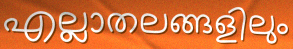
എല്ലാതലങ്ങളിലും